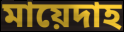
মায়েদাহ